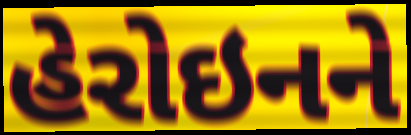
હેરોઇનને